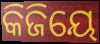
କିଜିୟେ